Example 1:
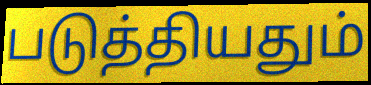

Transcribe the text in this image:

படுத்தியதும்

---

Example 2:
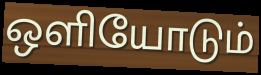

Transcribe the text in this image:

ஒளியோடும்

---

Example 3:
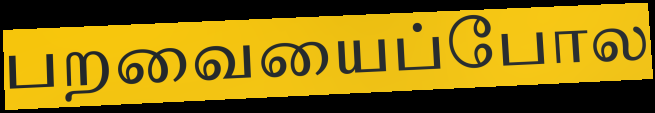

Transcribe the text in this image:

பறவையைப்போல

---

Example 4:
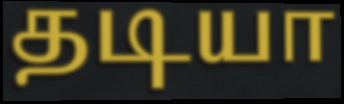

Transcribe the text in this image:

தடியா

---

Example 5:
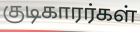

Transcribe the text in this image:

குடிகாரர்கள்